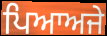
ਪਿਆਅਜੇ